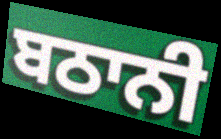
ਬਠਾਨੀ